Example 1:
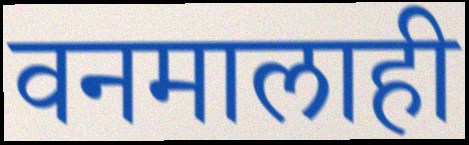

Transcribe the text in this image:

वनमालाही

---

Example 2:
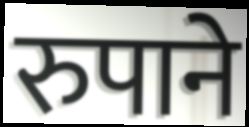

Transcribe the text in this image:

रुपाने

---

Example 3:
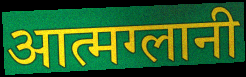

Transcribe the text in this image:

आत्मग्लानी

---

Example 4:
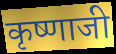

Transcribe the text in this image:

कृष्णाजी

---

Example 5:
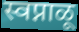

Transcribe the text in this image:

स्वप्नाळू